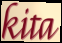
kita